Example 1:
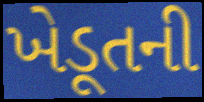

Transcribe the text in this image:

ખેડૂતની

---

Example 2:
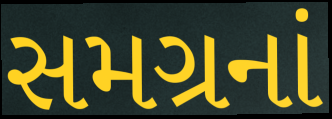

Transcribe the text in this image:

સમગ્રનાં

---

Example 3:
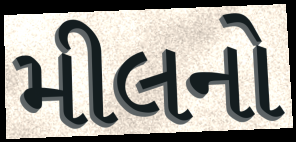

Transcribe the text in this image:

મીલનો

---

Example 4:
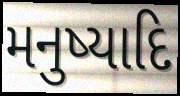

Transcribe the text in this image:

મનુષ્યાદિ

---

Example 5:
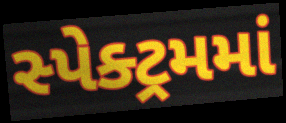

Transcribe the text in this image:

સ્પેક્ટ્રમમાં